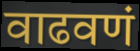
वाढवणं